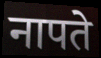
नापते